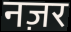
नज़र